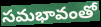
సమభావంతో